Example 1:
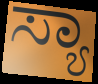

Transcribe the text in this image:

ಸ್ಯಾ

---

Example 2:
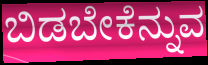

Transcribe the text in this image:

ಬಿಡಬೇಕೆನ್ನುವ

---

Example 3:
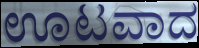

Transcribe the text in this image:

ಊಟವಾದ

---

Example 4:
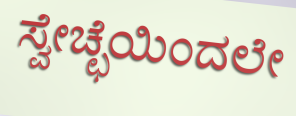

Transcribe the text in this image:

ಸ್ವೇಚ್ಛೆಯಿಂದಲೇ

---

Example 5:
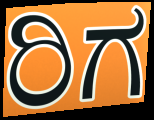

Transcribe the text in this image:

ರಿಗ